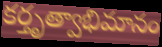
కర్తృత్వాభిమానం